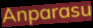
Anparasu